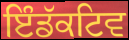
ਇੰਡੱਕਟਿਵ